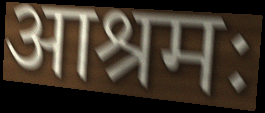
आश्रमः